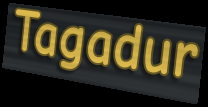
Tagadur